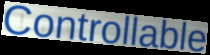
Controllable